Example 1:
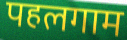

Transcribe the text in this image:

पहलगाम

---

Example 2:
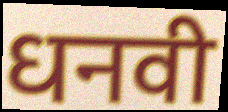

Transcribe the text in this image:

धनवी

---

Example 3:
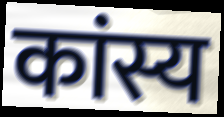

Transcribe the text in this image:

कांस्य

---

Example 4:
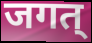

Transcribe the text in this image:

जगत्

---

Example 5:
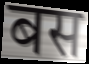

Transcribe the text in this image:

बस